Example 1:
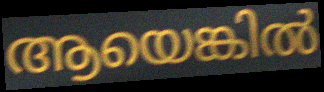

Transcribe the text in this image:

ആയെങ്കിൽ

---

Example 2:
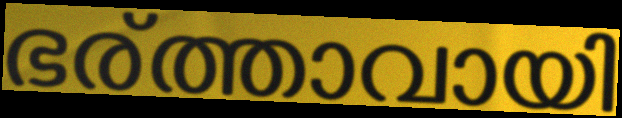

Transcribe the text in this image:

ഭര്ത്താവായി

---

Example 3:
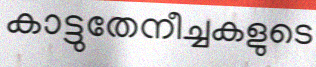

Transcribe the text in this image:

കാട്ടുതേനീച്ചകളുടെ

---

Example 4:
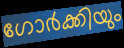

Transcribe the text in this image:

ഗോർക്കിയും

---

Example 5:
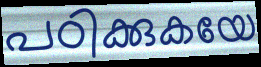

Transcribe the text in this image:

പഠിക്കുകയേ